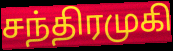
சந்திரமுகி